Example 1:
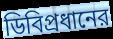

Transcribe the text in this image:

ডিবিপ্রধানের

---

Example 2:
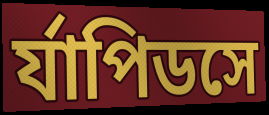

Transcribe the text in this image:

র্যাপিডসে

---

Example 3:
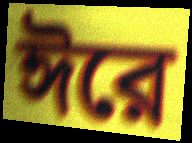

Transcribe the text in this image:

ঈরে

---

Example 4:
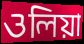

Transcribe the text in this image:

ওলিয়া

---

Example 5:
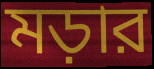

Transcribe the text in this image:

মড়ার